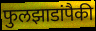
फुलझाडांपैकी